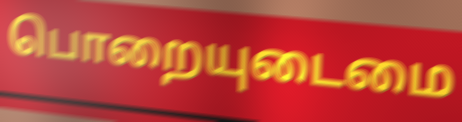
பொறையுடைமை